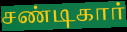
சண்டிகார்